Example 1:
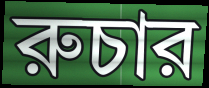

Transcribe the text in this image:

রুচার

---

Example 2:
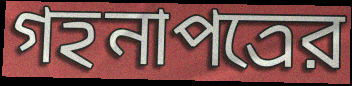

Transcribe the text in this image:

গহনাপত্রের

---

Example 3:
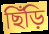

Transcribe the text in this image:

ছিঁড়ি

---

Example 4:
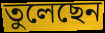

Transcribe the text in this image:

তুলেছেন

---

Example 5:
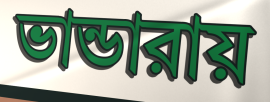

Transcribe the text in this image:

ভান্ডারায়